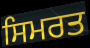
ਸਿਮਰਤ